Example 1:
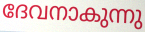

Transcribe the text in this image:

ദേവനാകുന്നു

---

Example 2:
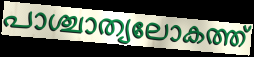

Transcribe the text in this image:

പാശ്ചാത്യലോകത്ത്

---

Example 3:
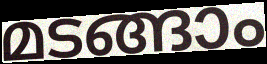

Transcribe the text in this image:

മടങ്ങാം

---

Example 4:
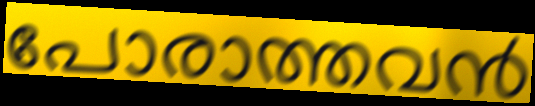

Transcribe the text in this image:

പോരാത്തവൻ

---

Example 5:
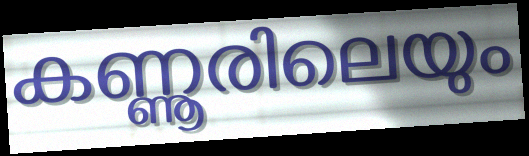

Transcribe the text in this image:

കണ്ണൂരിലെയും